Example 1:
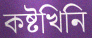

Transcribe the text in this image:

কষ্টখিনি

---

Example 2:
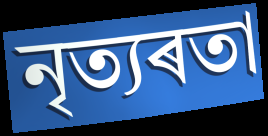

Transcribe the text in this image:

নৃত্যৰতা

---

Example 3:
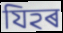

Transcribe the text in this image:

যিহৰ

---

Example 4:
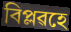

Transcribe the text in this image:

বিপ্লৱহে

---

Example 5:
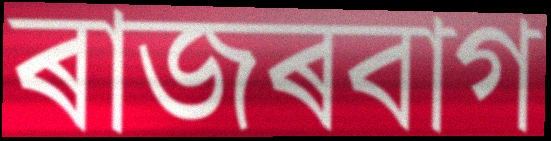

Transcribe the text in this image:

ৰাজৰবাগ